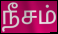
நீசம்